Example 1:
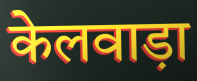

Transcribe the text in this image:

केलवाड़ा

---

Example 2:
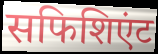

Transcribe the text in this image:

सफिशिएंट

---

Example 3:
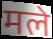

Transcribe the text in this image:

मले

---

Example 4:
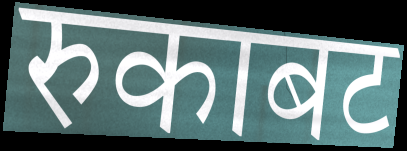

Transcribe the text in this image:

रुकाबट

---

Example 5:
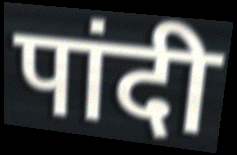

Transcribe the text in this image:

पांदी